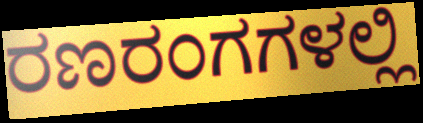
ರಣರಂಗಗಳಲ್ಲಿ